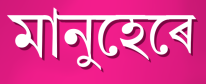
মানুহেৰে